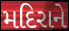
મદિરાને